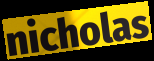
nicholas